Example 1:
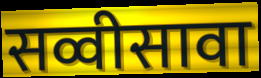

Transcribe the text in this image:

सव्वीसावा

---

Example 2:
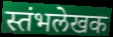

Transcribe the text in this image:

स्तंभलेखक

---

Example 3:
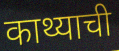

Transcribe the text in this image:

काथ्याची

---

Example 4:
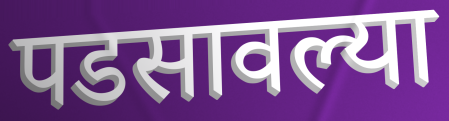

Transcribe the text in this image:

पडसावल्या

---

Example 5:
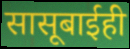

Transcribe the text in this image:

सासूबाईही